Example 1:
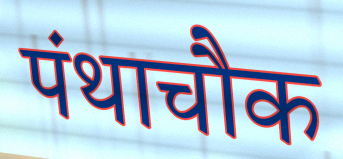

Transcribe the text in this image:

पंथाचौक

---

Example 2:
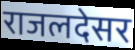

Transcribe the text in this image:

राजलदेसर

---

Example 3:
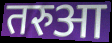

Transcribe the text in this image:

तरुआ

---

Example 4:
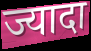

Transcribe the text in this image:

ज्‍यादा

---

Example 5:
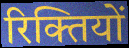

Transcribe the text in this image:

रिक्तियों